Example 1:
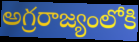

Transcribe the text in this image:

అగ్రరాజ్యంలోకి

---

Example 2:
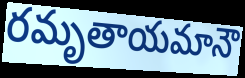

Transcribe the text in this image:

రమృతాయమానౌ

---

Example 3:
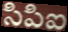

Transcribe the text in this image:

సిపిఐ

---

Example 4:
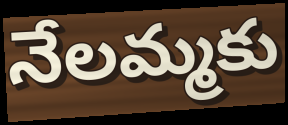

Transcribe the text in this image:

నేలమ్మకు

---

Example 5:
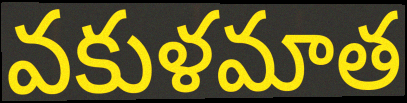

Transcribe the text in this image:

వకుళమాత